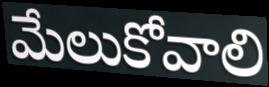
మేలుకోవాలి